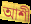
আশী